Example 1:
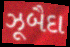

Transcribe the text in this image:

ઝૂબૈદા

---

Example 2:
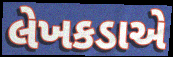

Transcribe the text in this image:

લેખકડાએ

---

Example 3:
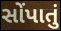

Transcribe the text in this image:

સોંપાતું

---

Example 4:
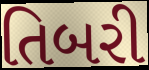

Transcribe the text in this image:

તિબરી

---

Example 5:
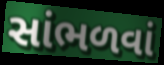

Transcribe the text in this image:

સાંભળવાં